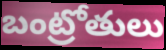
బంట్రోతులు